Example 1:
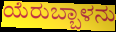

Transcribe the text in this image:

ಯೆರುಬ್ಬಾಳನು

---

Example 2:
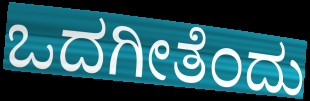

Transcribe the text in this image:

ಒದಗೀತೆಂದು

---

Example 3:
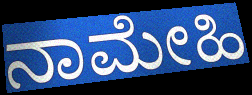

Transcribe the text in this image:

ನಾಮೇಹಿ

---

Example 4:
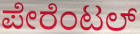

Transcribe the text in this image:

ಪೇರೆಂಟಲ್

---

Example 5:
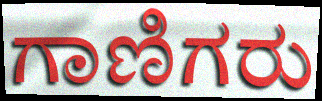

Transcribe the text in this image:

ಗಾಣಿಗರು